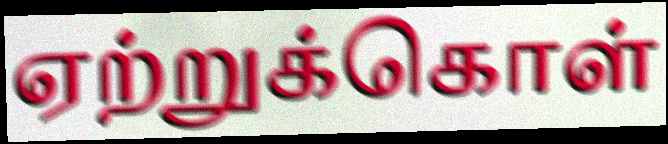
ஏற்றுக்கொள்